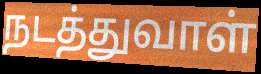
நடத்துவாள்